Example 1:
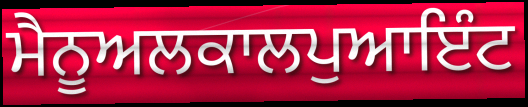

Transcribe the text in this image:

ਮੈਨੂਅਲਕਾਲਪੁਆਇੰਟ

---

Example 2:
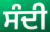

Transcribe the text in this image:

ਸੰਦੀ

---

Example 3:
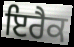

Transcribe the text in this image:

ਇਰੈਕ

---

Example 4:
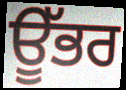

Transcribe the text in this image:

ਊੱਭਰ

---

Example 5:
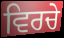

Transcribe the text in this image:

ਵਿਰਚੇ